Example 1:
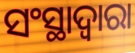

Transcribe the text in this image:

ସଂସ୍ଥାଦ୍ଵାରା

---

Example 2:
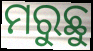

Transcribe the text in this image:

ମରୁଛୁ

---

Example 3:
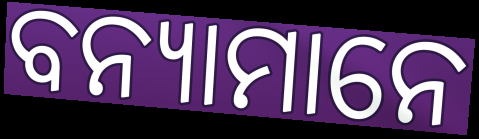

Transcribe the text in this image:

ବନ୍ୟାମାନେ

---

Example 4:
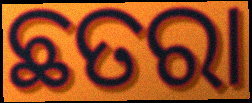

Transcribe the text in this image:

ଛତରା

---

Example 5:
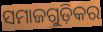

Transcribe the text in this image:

ସମାଜଗୁଡ଼ିକର